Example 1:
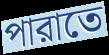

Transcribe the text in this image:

পারাতে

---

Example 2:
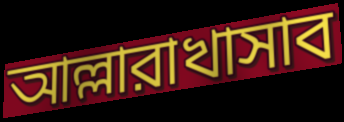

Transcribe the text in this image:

আল্লারাখাসাব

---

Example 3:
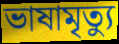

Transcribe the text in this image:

ভাষামৃত্যু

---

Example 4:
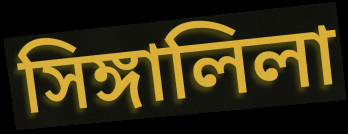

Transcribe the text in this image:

সিঙ্গালিলা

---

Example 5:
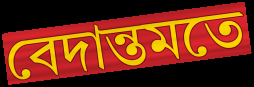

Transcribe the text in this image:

বেদান্তমতে